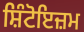
ਸ਼ਿੰਟੋਇਜ਼ਮ